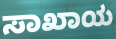
ಸಾಖಾಯ